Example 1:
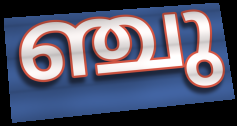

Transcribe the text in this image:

ഞ്ചു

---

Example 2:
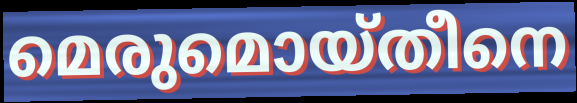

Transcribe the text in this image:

മെരുമൊയ്തീനെ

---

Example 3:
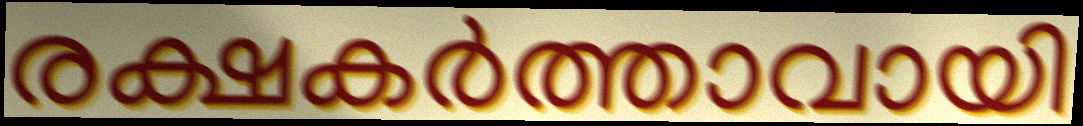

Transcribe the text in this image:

രക്ഷകർത്താവായി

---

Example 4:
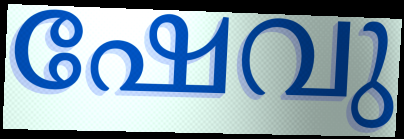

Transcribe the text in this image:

ഷേവു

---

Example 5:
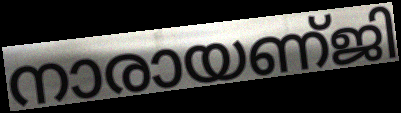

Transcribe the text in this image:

നാരായണ്ജി